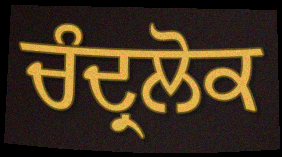
ਚੰਦ੍ਰਲੋਕ